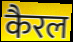
कैरल